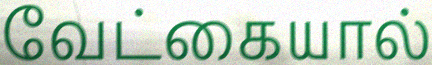
வேட்கையால்